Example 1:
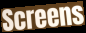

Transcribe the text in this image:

Screens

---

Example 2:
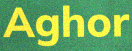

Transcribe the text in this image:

Aghor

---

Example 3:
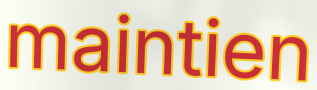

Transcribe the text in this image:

maintien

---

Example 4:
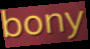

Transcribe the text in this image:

bony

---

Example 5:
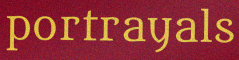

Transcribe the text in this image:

portrayals